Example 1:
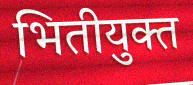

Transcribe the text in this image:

भितीयुक्त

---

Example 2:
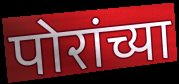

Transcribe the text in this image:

पोरांच्या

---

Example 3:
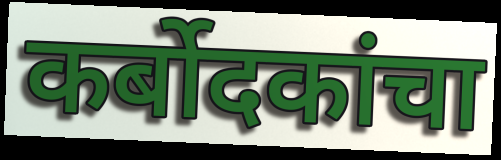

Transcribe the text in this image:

कर्बोदकांचा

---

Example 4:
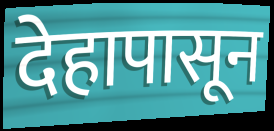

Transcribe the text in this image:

देहापासून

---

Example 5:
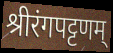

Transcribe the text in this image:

श्रीरंगपट्टणम्